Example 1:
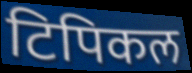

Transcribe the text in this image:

टिपिकल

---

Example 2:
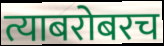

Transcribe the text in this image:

त्याबरोबरच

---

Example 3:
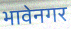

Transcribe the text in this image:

भावेनगर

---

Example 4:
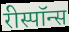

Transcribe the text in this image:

रीस्पॉन्स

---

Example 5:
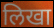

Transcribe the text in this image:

लिखा